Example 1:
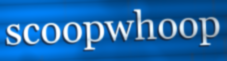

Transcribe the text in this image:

scoopwhoop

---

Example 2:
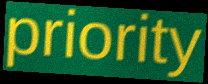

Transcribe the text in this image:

priority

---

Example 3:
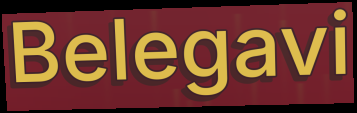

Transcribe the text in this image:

Belegavi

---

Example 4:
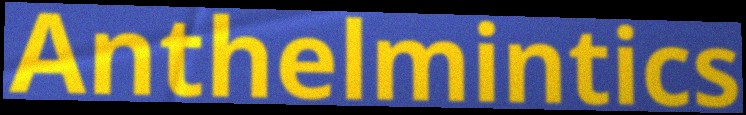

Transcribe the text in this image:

Anthelmintics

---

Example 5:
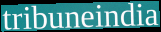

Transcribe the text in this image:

tribuneindia